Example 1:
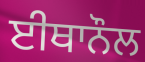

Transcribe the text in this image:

ਈਥਾਨੌਲ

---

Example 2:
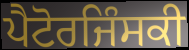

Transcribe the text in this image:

ਪੈਟੋਰਜਿੰਸਕੀ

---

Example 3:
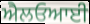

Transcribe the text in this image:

ਐਲਓਆਈ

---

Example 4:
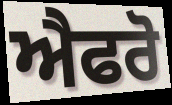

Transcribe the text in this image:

ਐਫਰੋ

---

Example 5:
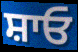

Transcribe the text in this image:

ਸ਼ਾਓ